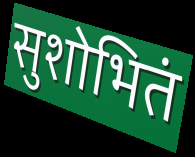
सुशोभितं